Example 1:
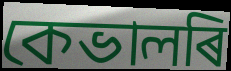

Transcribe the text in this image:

কেভালৰি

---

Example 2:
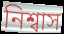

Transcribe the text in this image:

নিশ্বাস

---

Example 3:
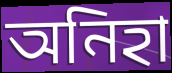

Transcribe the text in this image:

অনিহা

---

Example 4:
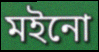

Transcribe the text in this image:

মইনো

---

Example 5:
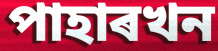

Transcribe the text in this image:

পাহাৰখন